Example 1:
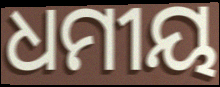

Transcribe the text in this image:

ଧମୀୟ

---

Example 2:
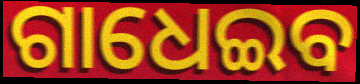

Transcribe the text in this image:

ଗାଧେଇବ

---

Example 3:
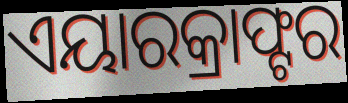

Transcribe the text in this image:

ଏୟାରକ୍ରାଫ୍ଟର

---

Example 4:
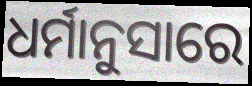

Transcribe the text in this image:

ଧର୍ମାନୁସାରେ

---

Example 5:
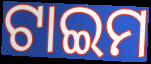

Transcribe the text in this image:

ଟାଇମ